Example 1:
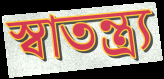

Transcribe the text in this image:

স্বাতন্ত্র্য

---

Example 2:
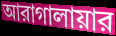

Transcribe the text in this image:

আরাগালায়ার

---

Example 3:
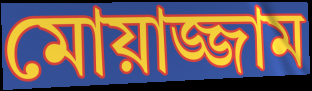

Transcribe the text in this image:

মোয়াজ্জাম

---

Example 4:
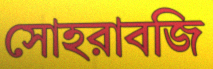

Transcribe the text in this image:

সোহরাবজি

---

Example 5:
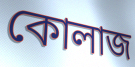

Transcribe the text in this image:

কোলাজ